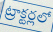
ట్రాక్టర్లలో